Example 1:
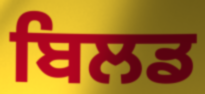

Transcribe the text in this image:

ਬਿਲਡ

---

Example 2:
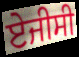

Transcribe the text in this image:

ਏਜੀਸੀ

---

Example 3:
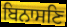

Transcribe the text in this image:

ਬਿਨਾਸਣਿ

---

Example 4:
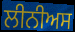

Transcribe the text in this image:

ਲੀਨੀਅਸ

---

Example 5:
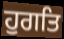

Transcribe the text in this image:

ਹੁਗਤਿ